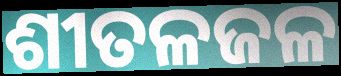
ଶୀତଳଜଳ